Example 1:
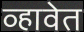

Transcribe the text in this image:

व्हावेत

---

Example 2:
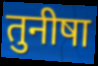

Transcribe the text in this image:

तुनीषा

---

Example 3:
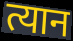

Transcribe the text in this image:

त्यान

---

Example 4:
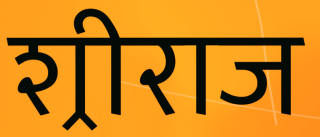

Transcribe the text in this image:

श्रीराज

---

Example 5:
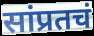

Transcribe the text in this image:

सांप्रतचं